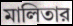
মালিতার